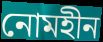
নোমহীন